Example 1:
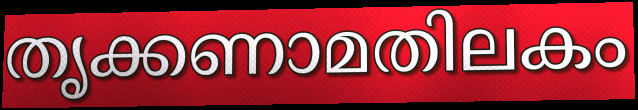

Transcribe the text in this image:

തൃക്കണാമതിലകം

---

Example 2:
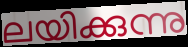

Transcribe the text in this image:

ലയിക്കുന്നു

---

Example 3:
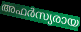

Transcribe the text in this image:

അഫർസ്യരായ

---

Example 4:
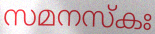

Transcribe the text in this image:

സമനസ്കഃ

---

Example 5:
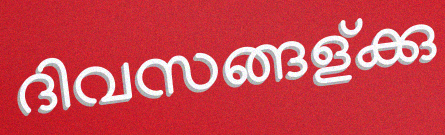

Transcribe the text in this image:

ദിവസങ്ങള്ക്കു